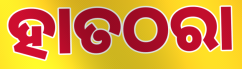
ହାତଠରା